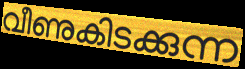
വീണുകിടക്കുന്ന